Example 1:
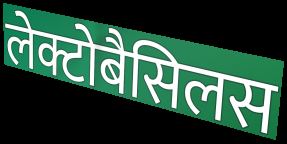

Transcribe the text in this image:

लेक्टोबैसिलस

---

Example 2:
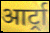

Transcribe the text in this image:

आर्ट्रा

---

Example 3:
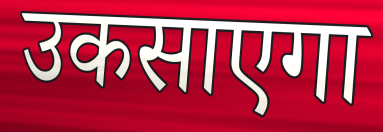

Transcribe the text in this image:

उकसाएगा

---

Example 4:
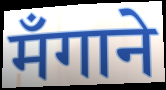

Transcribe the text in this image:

मँगाने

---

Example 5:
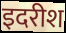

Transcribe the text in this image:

इदरीश